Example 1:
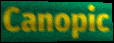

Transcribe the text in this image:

Canopic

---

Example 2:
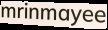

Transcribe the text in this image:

mrinmayee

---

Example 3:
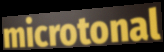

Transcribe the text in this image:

microtonal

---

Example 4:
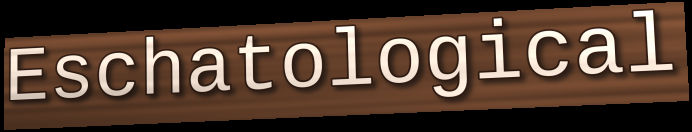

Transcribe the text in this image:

Eschatological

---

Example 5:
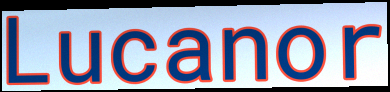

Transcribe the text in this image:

Lucanor